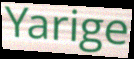
Yarige